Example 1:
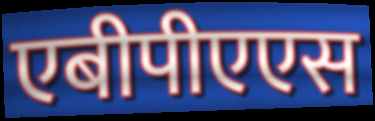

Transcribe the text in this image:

एबीपीएएस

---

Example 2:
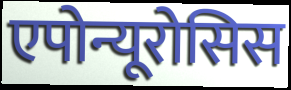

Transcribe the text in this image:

एपोन्यूरोसिस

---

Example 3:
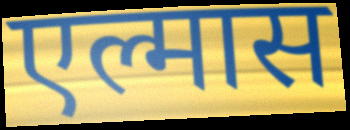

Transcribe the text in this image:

एल्मास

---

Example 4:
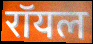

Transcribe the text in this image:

रॉयल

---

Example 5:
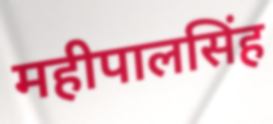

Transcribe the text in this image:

महीपालसिंह